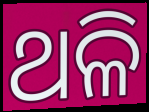
ଥଳି